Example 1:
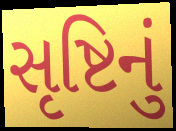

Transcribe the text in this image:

સૃષ્ટિનું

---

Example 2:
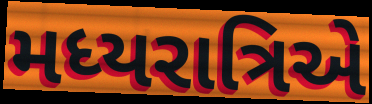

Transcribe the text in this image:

મધ્યરાત્રિએ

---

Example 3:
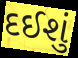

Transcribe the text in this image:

દઈશું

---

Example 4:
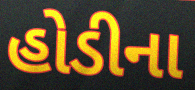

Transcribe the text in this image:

હોડીના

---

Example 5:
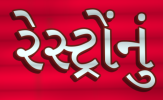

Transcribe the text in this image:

રેસ્ટ્રોંનું